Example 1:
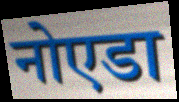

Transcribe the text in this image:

नोएडा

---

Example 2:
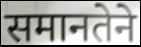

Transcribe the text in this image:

समानतेने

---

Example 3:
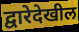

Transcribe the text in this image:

द्वारेदेखील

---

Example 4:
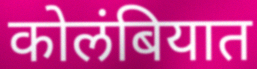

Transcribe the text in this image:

कोलंबियात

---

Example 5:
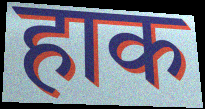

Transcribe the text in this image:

हाक